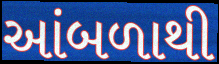
આંબળાથી